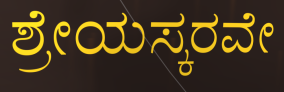
ಶ್ರೇಯಸ್ಕರವೇ